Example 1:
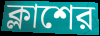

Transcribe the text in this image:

ক্লাশের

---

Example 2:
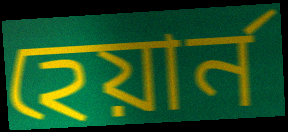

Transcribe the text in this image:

হেয়ার্ন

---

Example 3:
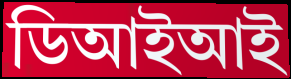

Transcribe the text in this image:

ডিআইআই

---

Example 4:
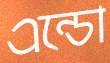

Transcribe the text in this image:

এন্ডো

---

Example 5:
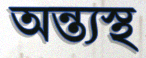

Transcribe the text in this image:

অন্ত্যস্থ